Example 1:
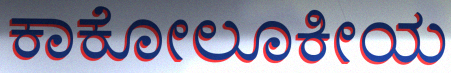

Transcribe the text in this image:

ಕಾಕೋಲೂಕೀಯ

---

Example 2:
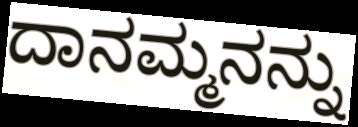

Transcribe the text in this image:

ದಾನಮ್ಮನನ್ನು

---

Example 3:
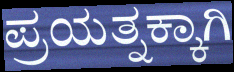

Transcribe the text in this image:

ಪ್ರಯತ್ನಕ್ಕಾಗಿ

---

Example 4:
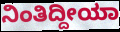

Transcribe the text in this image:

ನಿಂತಿದ್ದೀಯಾ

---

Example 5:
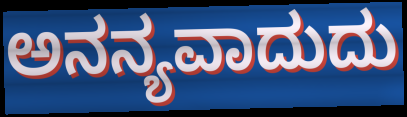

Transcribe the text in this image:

ಅನನ್ಯವಾದುದು